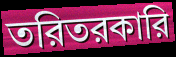
তরিতরকারি